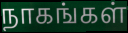
நாகங்கள்